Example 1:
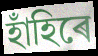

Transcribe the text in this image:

হাঁহিৰে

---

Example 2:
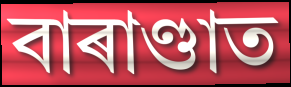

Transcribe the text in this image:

বাৰাণ্ডাত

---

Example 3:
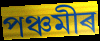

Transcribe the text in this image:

পঞ্চমীৰ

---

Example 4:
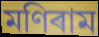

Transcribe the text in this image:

মণিৰাম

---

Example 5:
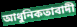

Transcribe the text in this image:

আধুনিকতাবাদী